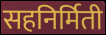
सहनिर्मिती